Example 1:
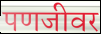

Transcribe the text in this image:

पणजीवर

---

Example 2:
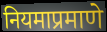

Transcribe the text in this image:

नियमाप्रमाणे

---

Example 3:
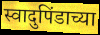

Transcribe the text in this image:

स्वादुपिंडाच्या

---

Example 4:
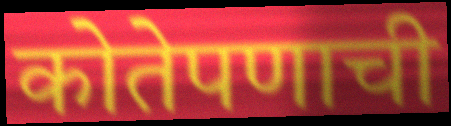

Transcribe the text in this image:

कोतेपणाची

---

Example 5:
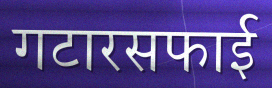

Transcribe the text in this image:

गटारसफाई